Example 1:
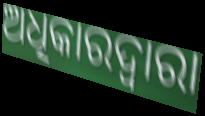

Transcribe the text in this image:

ଅଧିକାରଦ୍ୱାରା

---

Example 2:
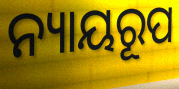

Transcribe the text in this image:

ନ୍ୟାୟରୂପ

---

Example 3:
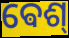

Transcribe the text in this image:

ଵେଶ୍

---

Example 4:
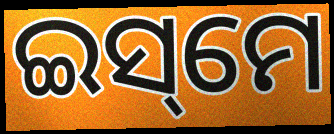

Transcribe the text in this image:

ଇସ୍‌ମେ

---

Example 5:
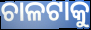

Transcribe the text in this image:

ଚାଳଟାକୁ